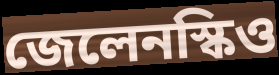
জেলেনস্কিও